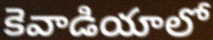
కెవాడియాలో